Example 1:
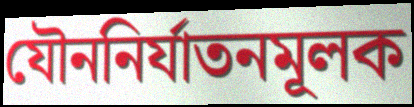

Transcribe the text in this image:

যৌননির্যাতনমূলক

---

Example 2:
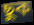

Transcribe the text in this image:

ছুক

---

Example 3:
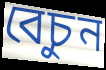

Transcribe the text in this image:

বেচুন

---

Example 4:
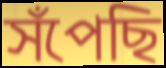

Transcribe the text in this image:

সঁপেছি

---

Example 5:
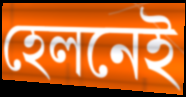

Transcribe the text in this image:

হেলনেই